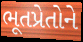
ભૂતપ્રેતોને